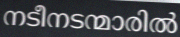
നടീനടന്മാരിൽ